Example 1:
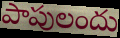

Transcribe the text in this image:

పాపులందు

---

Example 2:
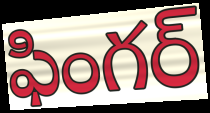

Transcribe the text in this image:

ఫింగర్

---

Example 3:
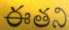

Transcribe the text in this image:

ఈతని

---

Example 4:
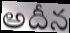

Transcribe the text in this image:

అదీన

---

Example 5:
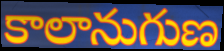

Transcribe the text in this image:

కాలానుగుణ